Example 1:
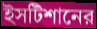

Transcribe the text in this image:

ইসটিশানের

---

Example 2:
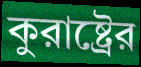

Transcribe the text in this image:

কুরাষ্ট্রের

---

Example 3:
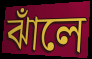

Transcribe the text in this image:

ঝাঁলে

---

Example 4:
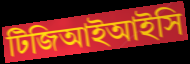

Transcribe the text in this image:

টিজিআইআইসি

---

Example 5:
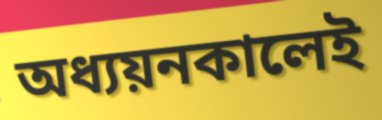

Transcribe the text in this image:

অধ্যয়নকালেই